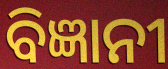
ବିଜ୍ଞାନୀ